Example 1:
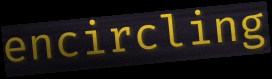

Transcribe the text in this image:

encircling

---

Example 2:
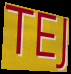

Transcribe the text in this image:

TEJ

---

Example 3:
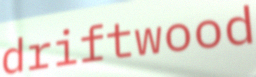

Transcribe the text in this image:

driftwood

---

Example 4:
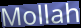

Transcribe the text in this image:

Mollah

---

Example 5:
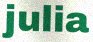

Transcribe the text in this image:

julia